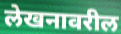
लेखनावरील